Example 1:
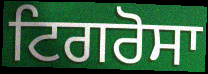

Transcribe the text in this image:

ਟਿਗਰੋਸਾ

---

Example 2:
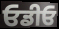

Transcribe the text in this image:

ਓਡੀਓ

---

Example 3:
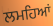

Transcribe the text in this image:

ਲਮਹਿਆਂ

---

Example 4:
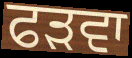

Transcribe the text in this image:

ਫੜਵਾ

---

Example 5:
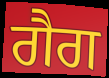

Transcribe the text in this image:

ਗੈਗ